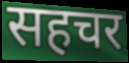
सहचर